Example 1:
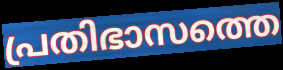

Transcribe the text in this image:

പ്രതിഭാസത്തെ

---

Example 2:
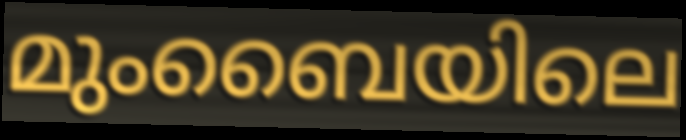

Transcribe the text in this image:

മുംബൈയിലെ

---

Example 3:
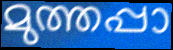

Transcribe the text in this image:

മുത്തപ്പാ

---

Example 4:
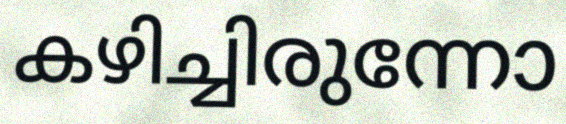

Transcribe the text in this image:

കഴിച്ചിരുന്നോ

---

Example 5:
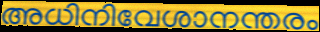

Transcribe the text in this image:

അധിനിവേശാനന്തരം